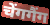
चेंगगैंग